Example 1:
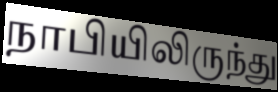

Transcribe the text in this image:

நாபியிலிருந்து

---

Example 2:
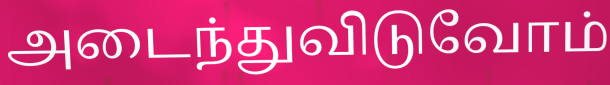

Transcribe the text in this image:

அடைந்துவிடுவோம்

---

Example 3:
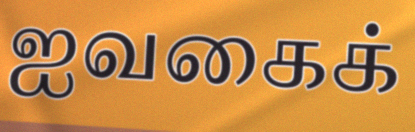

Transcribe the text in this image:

ஐவகைக்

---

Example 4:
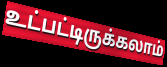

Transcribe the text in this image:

உட்பட்டிருக்கலாம்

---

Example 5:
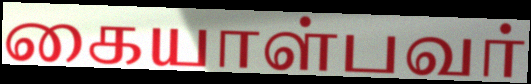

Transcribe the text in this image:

கையாள்பவர்